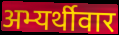
अभ्यर्थीवार